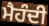
ਮੈਹੰਦੀ